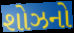
શોઝનો